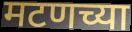
मटणच्या